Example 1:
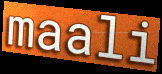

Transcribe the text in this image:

maali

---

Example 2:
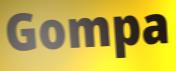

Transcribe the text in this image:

Gompa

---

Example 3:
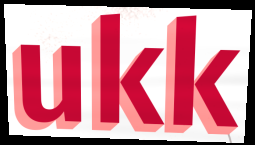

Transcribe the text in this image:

ukk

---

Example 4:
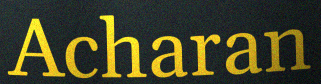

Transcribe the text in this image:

Acharan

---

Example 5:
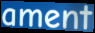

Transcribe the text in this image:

ament